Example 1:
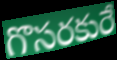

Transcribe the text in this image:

గొసరకురే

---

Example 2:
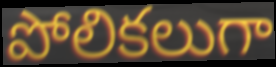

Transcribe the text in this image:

పోలికలుగా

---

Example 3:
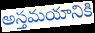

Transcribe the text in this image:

అస్తమయానికి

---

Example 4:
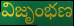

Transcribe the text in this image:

విజృంభణ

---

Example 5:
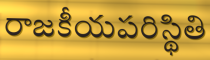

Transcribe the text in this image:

రాజకీయపరిస్థితి